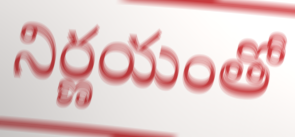
నిర్ణయంతో